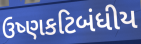
ઉષ્ણકટિબંધીય